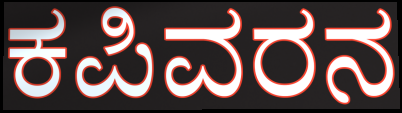
ಕಪಿವರನ